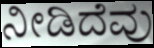
ನೀಡಿದೆವು